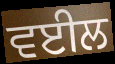
ਵਈਲ